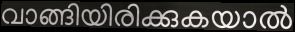
വാങ്ങിയിരിക്കുകയാൽ